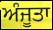
ਅੰਜੂਤਾ